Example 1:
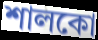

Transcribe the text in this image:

শালকো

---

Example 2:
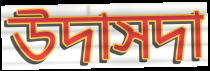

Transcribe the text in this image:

উদাসদা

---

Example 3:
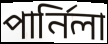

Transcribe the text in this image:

পার্নিলা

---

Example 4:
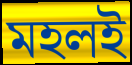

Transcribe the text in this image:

মহলই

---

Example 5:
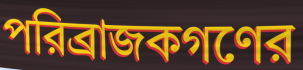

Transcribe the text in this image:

পরিব্রাজকগণের